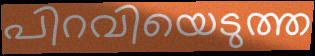
പിറവിയെടുത്ത